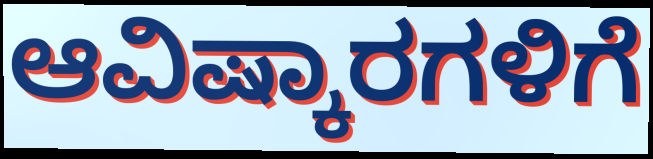
ಆವಿಷ್ಕಾರಗಳಿಗೆ